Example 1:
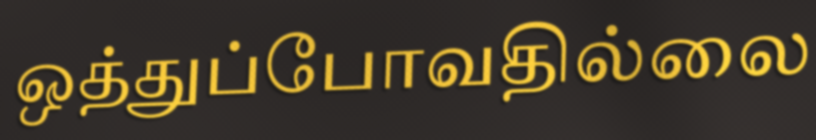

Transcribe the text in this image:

ஒத்துப்போவதில்லை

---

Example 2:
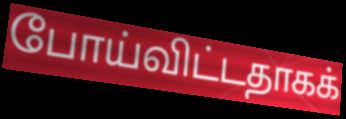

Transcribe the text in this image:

போய்விட்டதாகக்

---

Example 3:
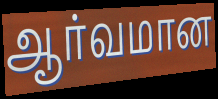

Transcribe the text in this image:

ஆர்வமான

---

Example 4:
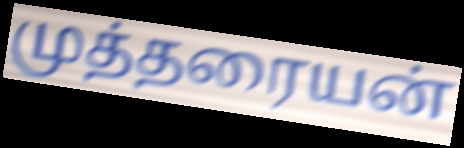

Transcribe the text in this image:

முத்தரையன்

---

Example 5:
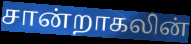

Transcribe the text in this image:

சான்றாகலின்